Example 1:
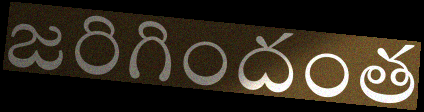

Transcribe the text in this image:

జరిగిందంత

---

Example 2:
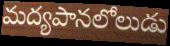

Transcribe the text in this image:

మద్యపానలోలుడు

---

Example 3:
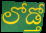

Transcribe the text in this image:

లోడ్తో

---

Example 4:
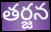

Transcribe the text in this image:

తర్జన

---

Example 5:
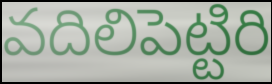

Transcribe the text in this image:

వదిలిపెట్టిరి